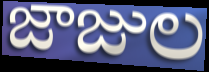
జాజుల